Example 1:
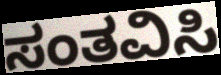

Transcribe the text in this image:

ಸಂತವಿಸಿ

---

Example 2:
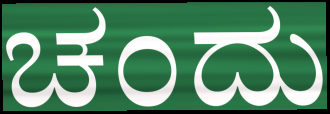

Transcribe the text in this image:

ಚಂದು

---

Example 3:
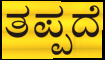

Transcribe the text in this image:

ತಪ್ಪದೆ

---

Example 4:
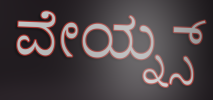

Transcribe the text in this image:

ವೇಯ್ನ್ಸ್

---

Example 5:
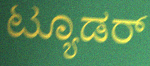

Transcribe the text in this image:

ಟ್ಯೂಡರ್